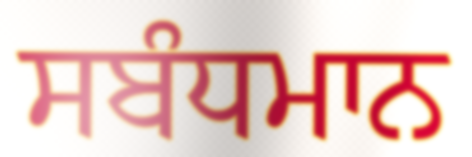
ਸਬੰਧਮਾਨ